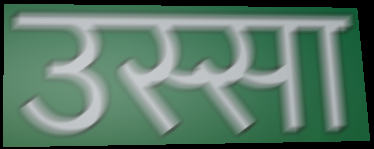
उस्सा